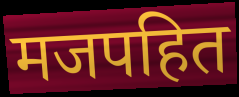
मजपहित